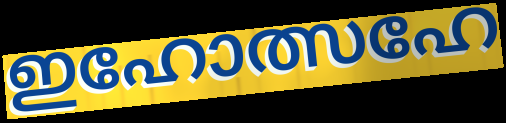
ഇഹോത്സഹേ